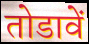
तोडावें